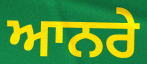
ਆਨਰੇ